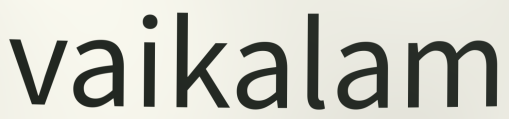
vaikalam